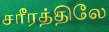
சரீரத்திலே